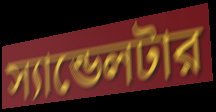
স্যান্ডেলটার